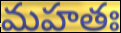
మహతః